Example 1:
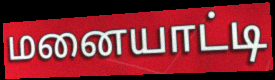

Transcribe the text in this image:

மனையாட்டி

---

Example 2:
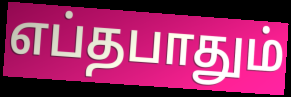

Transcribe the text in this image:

எப்தபாதும்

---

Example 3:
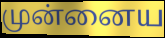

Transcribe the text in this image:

முன்னைய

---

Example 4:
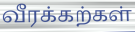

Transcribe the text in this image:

வீரக்கற்கள்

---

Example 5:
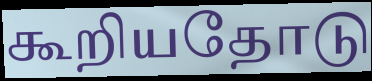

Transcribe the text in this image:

கூறியதோடு